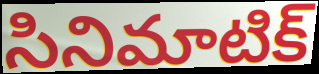
సినిమాటిక్